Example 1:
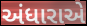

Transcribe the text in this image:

અંધારાએ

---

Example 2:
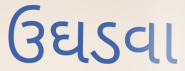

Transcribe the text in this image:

ઉઘડવા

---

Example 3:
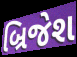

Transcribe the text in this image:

બ્રિજેશ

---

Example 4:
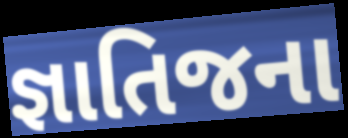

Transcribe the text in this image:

જ્ઞાતિજના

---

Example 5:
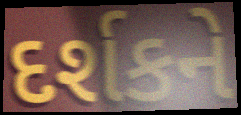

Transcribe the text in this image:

દર્શકને